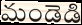
మండెడి